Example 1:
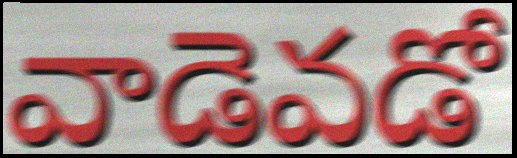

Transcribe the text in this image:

వాడెవడో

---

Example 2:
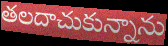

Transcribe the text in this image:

తలదాచుకున్నాను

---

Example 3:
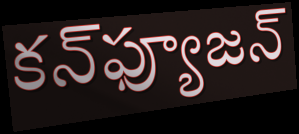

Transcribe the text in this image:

కన్‌ఫ్యూజన్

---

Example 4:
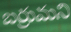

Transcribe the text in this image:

బర్రుమని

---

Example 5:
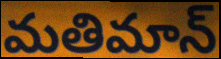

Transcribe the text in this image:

మతిమాన్